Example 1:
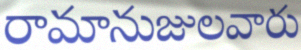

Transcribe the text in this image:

రామానుజులవారు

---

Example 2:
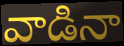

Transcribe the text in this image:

వాడినా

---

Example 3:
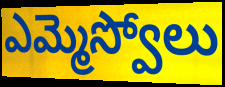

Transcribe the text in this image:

ఎమ్మెస్వోలు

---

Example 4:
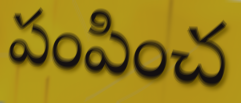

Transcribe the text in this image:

పంపించ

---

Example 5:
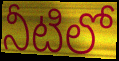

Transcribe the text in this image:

నీటిలో